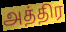
அத்திர